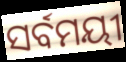
ସର୍ବମୟୀ